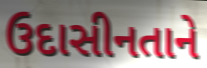
ઉદાસીનતાને